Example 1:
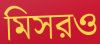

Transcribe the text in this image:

মিসরও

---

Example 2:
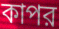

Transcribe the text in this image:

কাপর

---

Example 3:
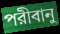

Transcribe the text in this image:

পরীবানু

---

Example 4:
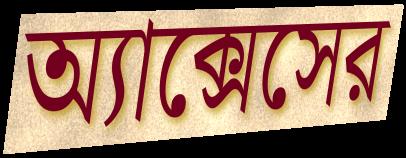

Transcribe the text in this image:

অ্যাক্সেসের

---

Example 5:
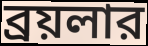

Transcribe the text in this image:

ব্রয়লার